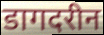
डागदरीन